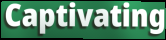
Captivating